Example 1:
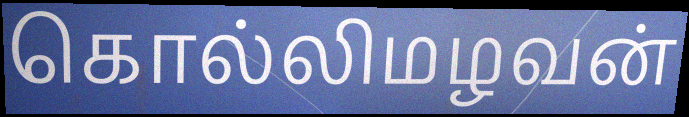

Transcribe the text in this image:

கொல்லிமழவன்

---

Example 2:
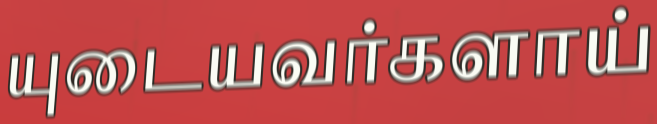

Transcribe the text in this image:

யுடையவர்களாய்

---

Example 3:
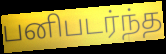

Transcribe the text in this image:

பனிபடர்ந்த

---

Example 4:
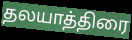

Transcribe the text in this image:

தலயாத்திரை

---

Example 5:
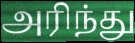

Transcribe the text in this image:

அரிந்து